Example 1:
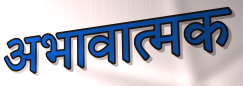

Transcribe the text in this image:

अभावात्मक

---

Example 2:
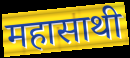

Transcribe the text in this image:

महासाथी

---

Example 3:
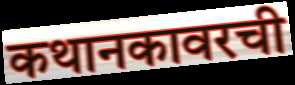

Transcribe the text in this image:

कथानकावरची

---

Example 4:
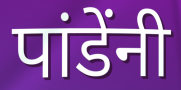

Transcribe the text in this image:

पांडेंनी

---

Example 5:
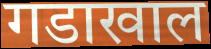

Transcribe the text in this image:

गडाखाल